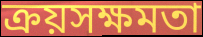
ক্রয়সক্ষমতা